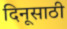
दिनूसाठी